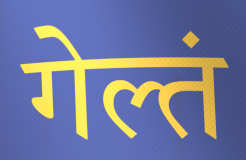
गेल्तं